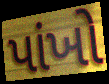
પાંખો